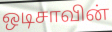
ஒடிசாவின்